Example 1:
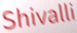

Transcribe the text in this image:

Shivalli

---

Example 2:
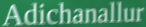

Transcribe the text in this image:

Adichanallur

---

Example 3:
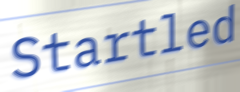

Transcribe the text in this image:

Startled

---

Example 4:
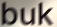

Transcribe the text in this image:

buk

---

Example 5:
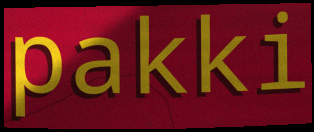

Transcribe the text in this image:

pakki